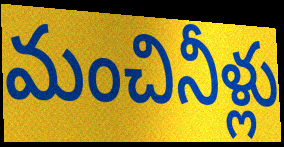
మంచినీళ్లు